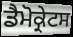
ਡੈਮੋਕ੍ਰੇਟਸ